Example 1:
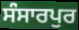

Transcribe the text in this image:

ਸੰਸਾਰਪੁਰ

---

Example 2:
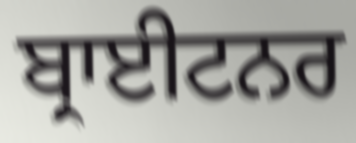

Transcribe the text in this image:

ਬ੍ਰਾਈਟਨਰ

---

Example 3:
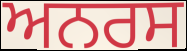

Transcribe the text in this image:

ਅਨਰਸ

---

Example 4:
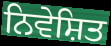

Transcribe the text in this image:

ਨਿਵੇਸ਼ਿਤ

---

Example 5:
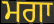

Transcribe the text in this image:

ਮਗਾ